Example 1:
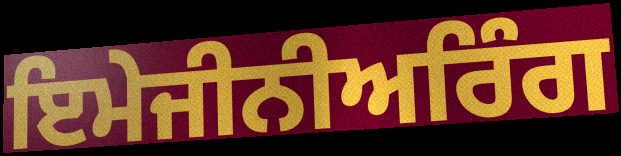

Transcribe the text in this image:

ਇਮੇਜੀਨੀਅਰਿੰਗ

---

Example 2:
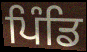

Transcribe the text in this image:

ਪਿੰਡਿ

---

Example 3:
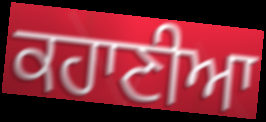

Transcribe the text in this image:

ਕਹਾਣੀਆ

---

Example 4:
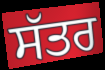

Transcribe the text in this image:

ਸੱਤਰ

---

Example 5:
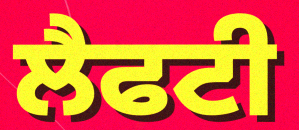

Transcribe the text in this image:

ਲੈਫਟੀ